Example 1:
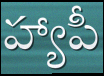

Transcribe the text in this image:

హ్యాపీ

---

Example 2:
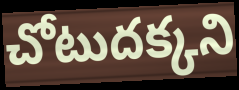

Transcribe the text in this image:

చోటుదక్కని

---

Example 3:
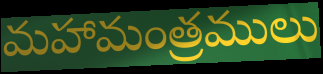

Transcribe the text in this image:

మహామంత్రములు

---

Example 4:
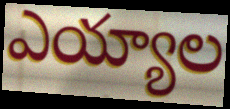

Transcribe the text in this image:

ఎయ్యాల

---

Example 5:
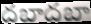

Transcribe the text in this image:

దబాదబా